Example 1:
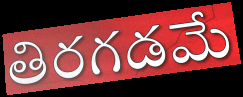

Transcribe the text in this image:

తిరగడమే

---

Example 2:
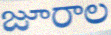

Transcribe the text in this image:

జూరాల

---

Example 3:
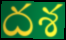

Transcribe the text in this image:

దశ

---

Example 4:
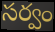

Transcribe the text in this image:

సర్వం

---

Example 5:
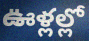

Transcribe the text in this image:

ఊళ్లల్లో